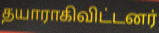
தயாராகிவிட்டனர்